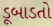
ડૂબાડતો